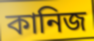
কানিজ